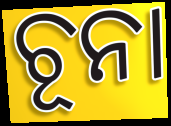
ଚୂନା